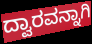
ದ್ವಾರವನ್ನಾಗಿ